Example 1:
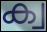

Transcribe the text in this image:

ക്വ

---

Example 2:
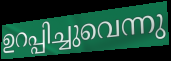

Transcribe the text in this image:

ഉറപ്പിച്ചുവെന്നു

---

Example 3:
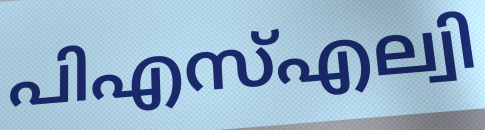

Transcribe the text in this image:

പിഎസ്എല്വി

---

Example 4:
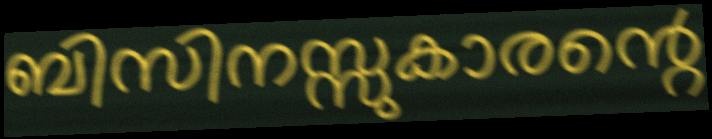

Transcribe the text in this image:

ബിസിനസ്സുകാരന്റെ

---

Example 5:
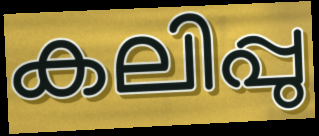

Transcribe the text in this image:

കലിപ്പു